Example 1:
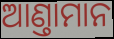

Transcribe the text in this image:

ଆଣ୍ତାମାନ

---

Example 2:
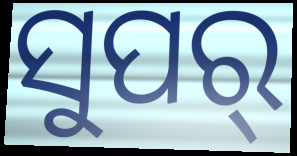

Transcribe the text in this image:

ସୁପର୍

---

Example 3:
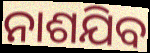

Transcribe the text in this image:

ନାଶଯିବ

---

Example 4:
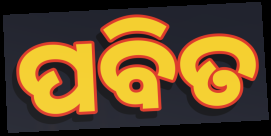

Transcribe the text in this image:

ପବିତ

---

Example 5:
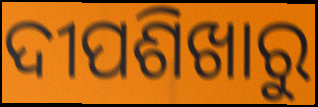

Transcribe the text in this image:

ଦୀପଶିଖାରୁ